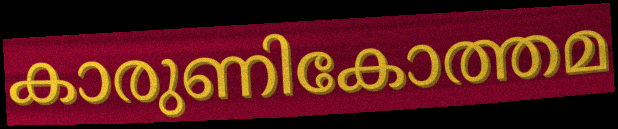
കാരുണികോത്തമ